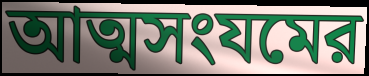
আত্মসংযমের